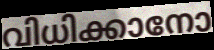
വിധിക്കാനോ